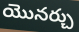
యొనర్చు